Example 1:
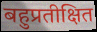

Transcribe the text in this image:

बहुप्रतीक्षित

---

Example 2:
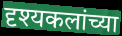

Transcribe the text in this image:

दृश्यकलांच्या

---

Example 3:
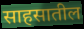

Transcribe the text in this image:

साहसातील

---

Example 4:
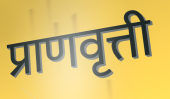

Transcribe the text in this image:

प्राणवृत्ती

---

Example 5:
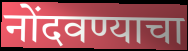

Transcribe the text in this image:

नोंदवण्याचा